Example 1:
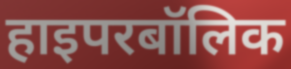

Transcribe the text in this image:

हाइपरबॉलिक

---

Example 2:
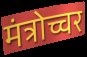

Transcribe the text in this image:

मंत्रोच्चर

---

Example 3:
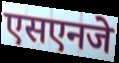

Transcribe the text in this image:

एसएनजे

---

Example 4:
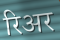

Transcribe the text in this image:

रिअर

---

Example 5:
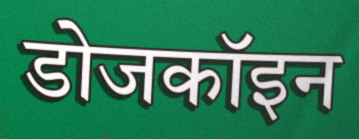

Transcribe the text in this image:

डोजकॉइन